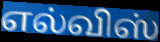
எல்விஸ்